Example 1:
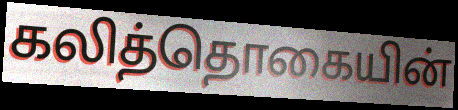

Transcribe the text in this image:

கலித்தொகையின்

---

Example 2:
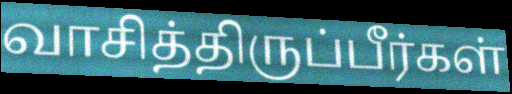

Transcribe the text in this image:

வாசித்திருப்பீர்கள்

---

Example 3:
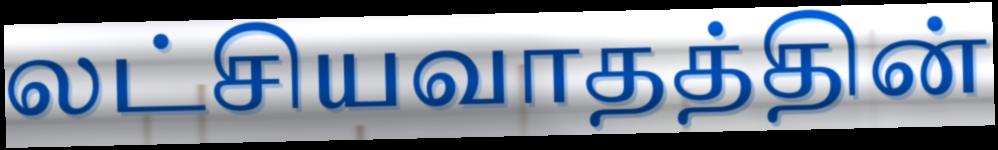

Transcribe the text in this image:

லட்சியவாதத்தின்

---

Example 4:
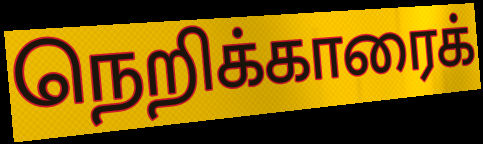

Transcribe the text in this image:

நெறிக்காரைக்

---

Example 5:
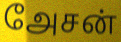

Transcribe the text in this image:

அேசன்